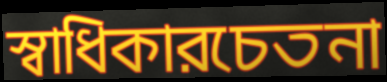
স্বাধিকারচেতনা